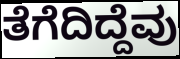
ತೆಗೆದಿದ್ದೆವು